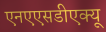
एनएएसडीएक्यू